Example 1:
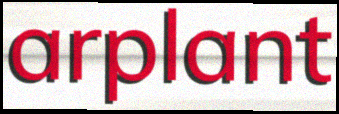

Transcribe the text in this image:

arplant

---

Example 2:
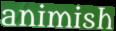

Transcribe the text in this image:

animish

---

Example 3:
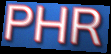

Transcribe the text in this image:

PHR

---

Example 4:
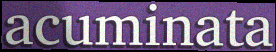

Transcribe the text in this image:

acuminata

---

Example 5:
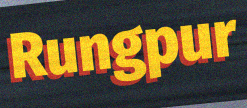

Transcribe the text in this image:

Rungpur